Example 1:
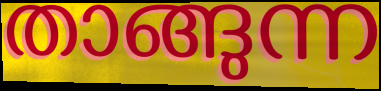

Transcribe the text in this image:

താങ്ങുന്ന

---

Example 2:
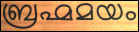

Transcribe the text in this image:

ബ്രഹ്മമയം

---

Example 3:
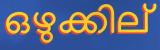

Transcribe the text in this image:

ഒഴുക്കില്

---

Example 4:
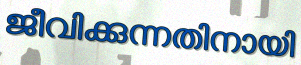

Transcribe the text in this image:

ജീവിക്കുന്നതിനായി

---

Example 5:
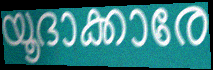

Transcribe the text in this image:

യൂദാക്കാരേ